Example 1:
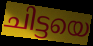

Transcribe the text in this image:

ചിട്ടയെ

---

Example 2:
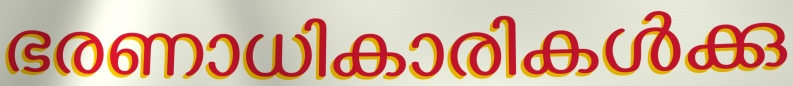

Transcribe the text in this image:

ഭരണാധികാരികൾക്കു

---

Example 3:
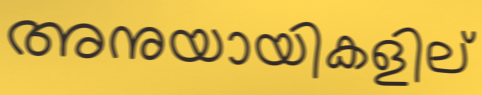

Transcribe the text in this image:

അനുയായികളില്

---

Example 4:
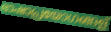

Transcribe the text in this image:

ഭാഷാപ്രയോഗങ്ങള്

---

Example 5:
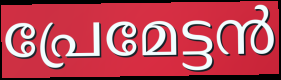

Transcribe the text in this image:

പ്രേമേട്ടൻ